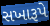
સખારૂપે